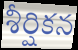
శీర్షికన